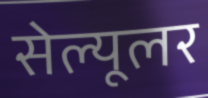
सेल्यूलर